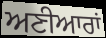
ਅਣੀਆਰਾਂ